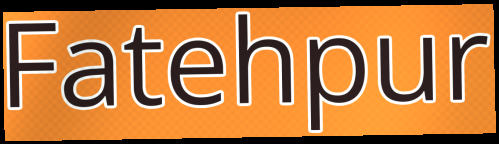
Fatehpur